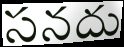
సనదు